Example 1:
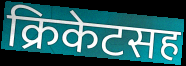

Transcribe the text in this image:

क्रिकेटसह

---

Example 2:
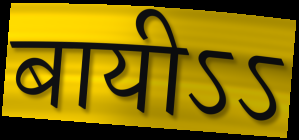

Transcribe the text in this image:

बायीऽऽ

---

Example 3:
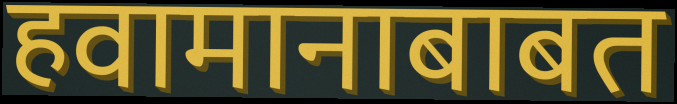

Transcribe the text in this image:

हवामानाबाबत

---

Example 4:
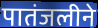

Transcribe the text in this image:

पातंजलीने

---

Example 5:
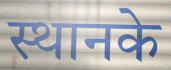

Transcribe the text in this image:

स्थानके